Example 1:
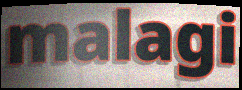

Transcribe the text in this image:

malagi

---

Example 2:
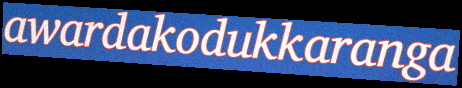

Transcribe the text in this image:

awardakodukkaranga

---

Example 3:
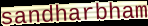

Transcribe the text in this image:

sandharbham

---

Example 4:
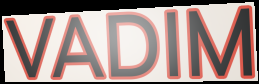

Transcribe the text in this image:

VADIM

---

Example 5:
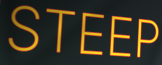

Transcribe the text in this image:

STEEP